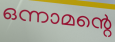
ഒന്നാമന്റെ